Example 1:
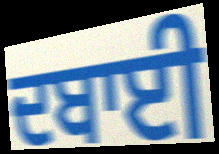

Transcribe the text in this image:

ਦਬਾਈ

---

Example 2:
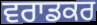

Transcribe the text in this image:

ਵਰਾਡਕਰ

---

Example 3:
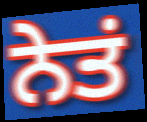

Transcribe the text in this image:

ਨੇਤਂ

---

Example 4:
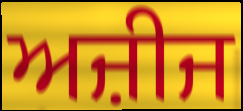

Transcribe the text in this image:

ਅਜ਼ੀਜ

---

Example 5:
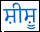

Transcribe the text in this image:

ਸ਼ੀਸ਼ੂ